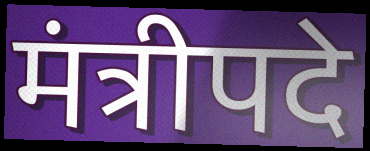
मंत्रीपदे